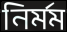
নিৰ্মম